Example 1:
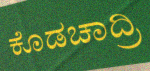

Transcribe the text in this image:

ಕೊಡಚಾದ್ರಿ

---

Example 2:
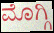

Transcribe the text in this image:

ಮೊಗ್ಗಿ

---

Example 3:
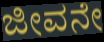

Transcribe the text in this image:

ಜೀವನೇ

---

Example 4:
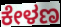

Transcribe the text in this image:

ಕೇಳಣ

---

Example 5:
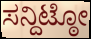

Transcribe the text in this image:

ಸನ್ದಿಟ್ಠೋ